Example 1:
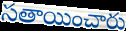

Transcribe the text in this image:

సతాయించారు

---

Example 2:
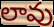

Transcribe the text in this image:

లావు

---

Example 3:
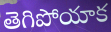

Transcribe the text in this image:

తెగిపోయాక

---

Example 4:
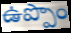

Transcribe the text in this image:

ఉప్పొం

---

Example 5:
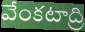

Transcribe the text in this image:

వేంకటాద్రి